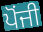
ਪੋਂਜੀ